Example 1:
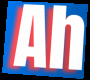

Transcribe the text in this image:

Ah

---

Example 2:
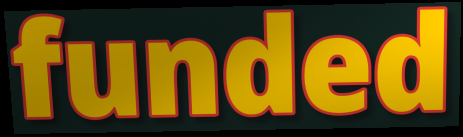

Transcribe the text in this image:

funded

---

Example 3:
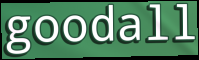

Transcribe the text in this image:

goodall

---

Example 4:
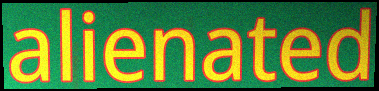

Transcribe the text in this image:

alienated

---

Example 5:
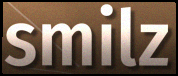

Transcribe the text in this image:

smilz